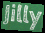
Jilly